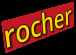
rocher